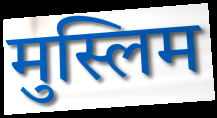
मुस्लिम